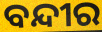
ବନ୍ଦୀର